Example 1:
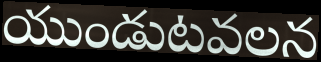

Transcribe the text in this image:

యుండుటవలన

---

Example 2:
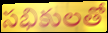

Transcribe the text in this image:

సభికులతో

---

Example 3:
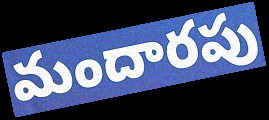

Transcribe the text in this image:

మందారపు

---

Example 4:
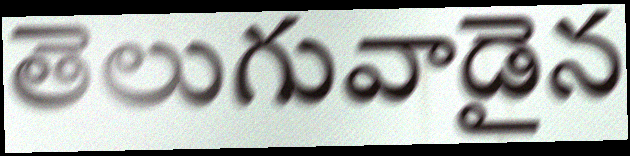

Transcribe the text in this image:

తెలుగువాడైన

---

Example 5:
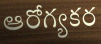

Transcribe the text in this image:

ఆరోగ్యకర